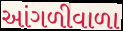
આંગળીવાળા